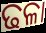
ଢଳା